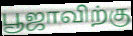
பூஜாவிற்கு